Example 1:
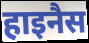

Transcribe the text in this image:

हाइनैस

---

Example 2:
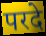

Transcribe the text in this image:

परदे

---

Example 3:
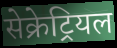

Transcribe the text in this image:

सेक्रेट्रियल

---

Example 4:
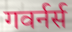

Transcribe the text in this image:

गवर्नर्स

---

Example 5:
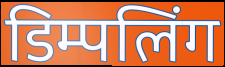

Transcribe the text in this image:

डिम्पलिंग